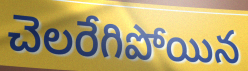
చెలరేగిపోయిన